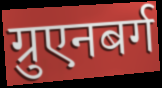
ग्रुएनबर्ग